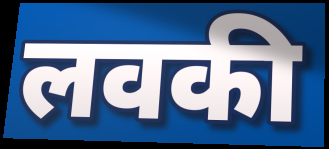
लवकी